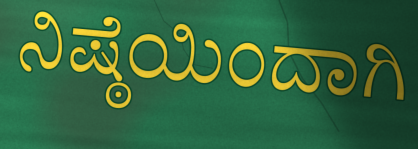
ನಿಷ್ಠೆಯಿಂದಾಗಿ